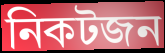
নিকটজন